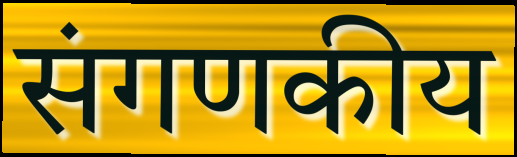
संगणकीय